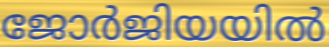
ജോർജിയയിൽ